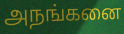
அநங்கனை